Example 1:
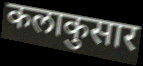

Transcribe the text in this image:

कलाकुसार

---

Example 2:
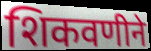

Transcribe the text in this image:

शिकवणीने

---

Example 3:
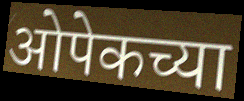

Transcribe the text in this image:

ओपेकच्या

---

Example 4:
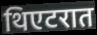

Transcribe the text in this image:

थिएटरात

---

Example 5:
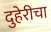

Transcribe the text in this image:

दुहेरीचा